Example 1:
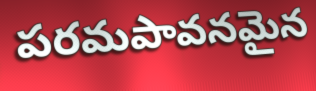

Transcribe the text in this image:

పరమపావనమైన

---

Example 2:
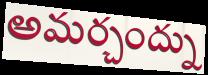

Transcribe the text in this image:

అమర్చంద్ను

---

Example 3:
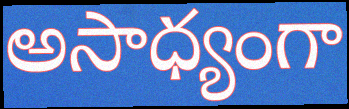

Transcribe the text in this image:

అసాధ్యంగా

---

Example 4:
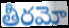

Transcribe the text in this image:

తీరమో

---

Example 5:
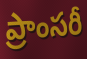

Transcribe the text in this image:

ప్రాంసరీ